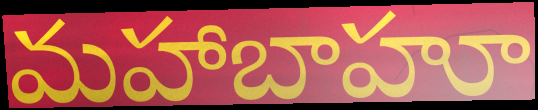
మహాబాహూ